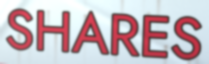
SHARES